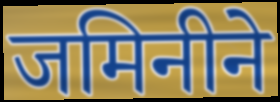
जमिनीने